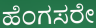
ಹೆಂಗಸರೇ